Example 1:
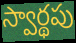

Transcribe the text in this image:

స్వార్థపు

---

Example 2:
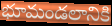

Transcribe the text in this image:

భూమండలానికి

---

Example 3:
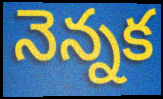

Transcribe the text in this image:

నెన్నక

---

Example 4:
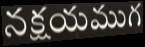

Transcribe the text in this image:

నక్షయముగ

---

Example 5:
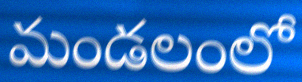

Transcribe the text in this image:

మండలంలో